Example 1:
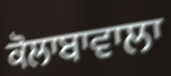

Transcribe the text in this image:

ਕੋਲਾਬਾਵਾਲਾ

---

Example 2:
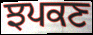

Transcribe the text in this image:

ਝਪਕਣ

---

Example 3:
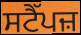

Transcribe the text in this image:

ਸਟੈੱਪਜ਼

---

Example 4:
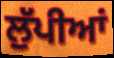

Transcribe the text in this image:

ਲੁੱਪੀਆਂ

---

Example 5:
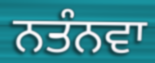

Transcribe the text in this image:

ਨਤੰਨਵਾ